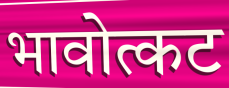
भावोत्कट